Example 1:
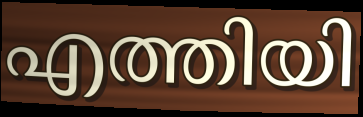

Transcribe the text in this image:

എത്തിയി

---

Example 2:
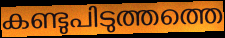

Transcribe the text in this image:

കണ്ടുപിടുത്തത്തെ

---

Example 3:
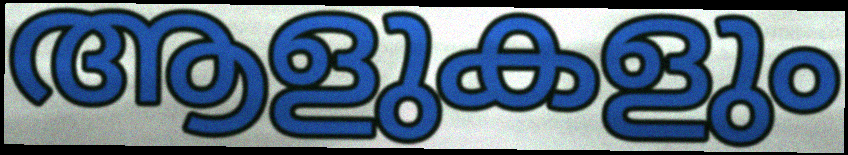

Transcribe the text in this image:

ആളുകളും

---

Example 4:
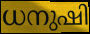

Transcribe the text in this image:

ധനുഷി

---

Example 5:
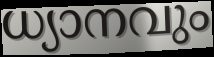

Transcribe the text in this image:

ധ്യാനവും